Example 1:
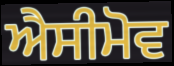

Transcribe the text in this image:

ਐਸੀਮੋਵ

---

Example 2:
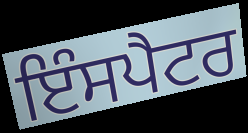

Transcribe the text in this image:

ਇੰਸਪੈਟਰ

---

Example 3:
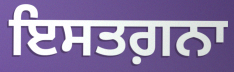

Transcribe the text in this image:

ਇਸਤਗ਼ਨਾ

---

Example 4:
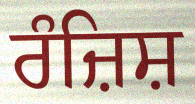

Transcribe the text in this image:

ਰੰਜ਼ਿਸ਼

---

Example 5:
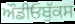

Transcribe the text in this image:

ਔਡੀਓਬੁੱਕਸ